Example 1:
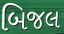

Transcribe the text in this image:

બિજલ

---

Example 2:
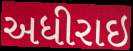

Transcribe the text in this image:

અધીરાઇ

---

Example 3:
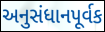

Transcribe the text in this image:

અનુસંધાનપૂર્વક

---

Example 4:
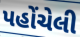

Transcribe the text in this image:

પહોંચેલી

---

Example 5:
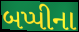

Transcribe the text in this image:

બપ્પીના